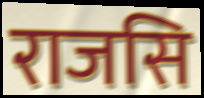
राजसि